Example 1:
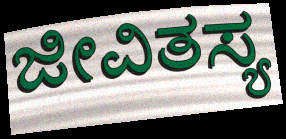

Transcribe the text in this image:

ಜೀವಿತಸ್ಯ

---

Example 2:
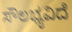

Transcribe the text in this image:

ಸೌಲಭ್ಯವಿದೆ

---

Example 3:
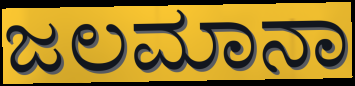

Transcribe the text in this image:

ಜಲಮಾನಾ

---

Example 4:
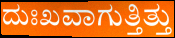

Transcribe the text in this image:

ದುಃಖವಾಗುತ್ತಿತ್ತು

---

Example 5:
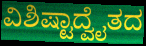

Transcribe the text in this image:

ವಿಶಿಷ್ಟಾದ್ವೈತದ